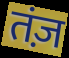
तंज़